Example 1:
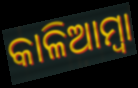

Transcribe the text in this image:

କାଳିଆମ୍ବା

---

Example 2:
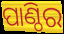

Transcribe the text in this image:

ପାଣ୍ଠିର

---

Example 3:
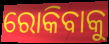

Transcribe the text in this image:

ରୋକିବାକୁ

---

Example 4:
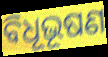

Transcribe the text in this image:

ବିଧୂଭୂଷଣ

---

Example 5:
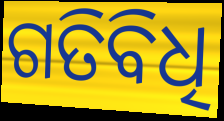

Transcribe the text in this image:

ଗତିବିଧି